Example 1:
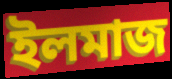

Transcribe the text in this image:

ইলমাজ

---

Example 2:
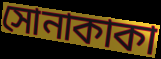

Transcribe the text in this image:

সোনাকাকা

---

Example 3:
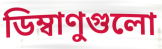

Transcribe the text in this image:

ডিম্বাণুগুলো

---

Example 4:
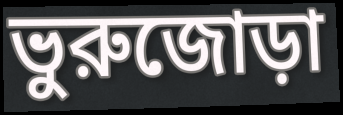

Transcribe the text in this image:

ভুরুজোড়া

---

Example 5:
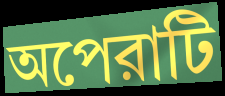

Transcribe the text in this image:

অপেরাটি